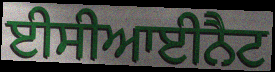
ਈਸੀਆਈਨੈਟ